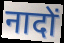
नादों